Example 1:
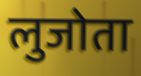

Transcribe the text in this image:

लुजोता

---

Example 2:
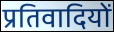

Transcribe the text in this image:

प्रतिवादियों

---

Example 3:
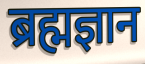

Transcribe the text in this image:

ब्रह्मज्ञान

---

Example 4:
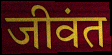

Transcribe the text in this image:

जीवंत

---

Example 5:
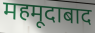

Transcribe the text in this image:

महमूदाबाद